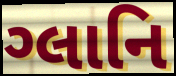
ગ્લાનિ